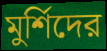
মুর্শিদের